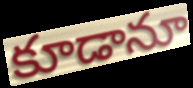
కూడానూ